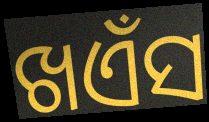
ଖଏଁସ